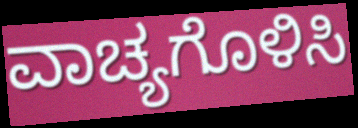
ವಾಚ್ಯಗೊಳಿಸಿ